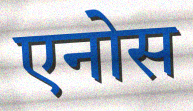
एनोस